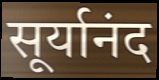
सूर्यानंद